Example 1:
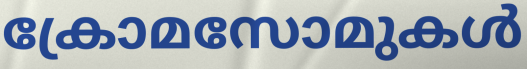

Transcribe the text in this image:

ക്രോമസോമുകൾ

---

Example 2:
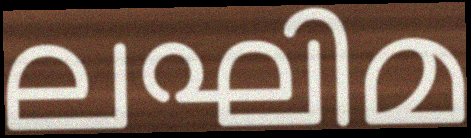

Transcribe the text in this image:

ലഘിമ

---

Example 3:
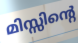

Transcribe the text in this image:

മിസ്സിന്റെ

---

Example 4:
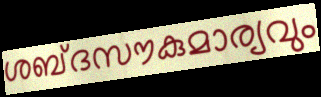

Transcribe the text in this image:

ശബ്ദസൗകുമാര്യവും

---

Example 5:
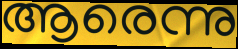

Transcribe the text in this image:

ആരെന്നു